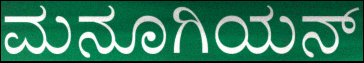
ಮನೂಗಿಯನ್